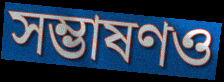
সম্ভাষণও